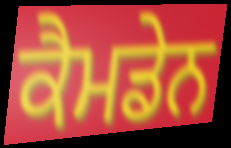
ਕੈਮਡੇਨ